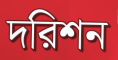
দরিশন